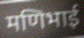
मणिभाई